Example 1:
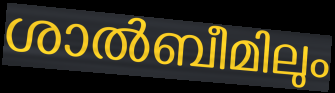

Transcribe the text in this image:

ശാൽബീമിലും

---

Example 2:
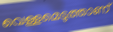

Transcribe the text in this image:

വെള്ളമെടുത്താണ്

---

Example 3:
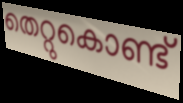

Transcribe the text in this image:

തെറ്റുകൊണ്ട്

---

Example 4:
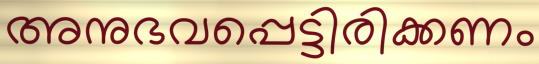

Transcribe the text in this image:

അനുഭവപ്പെട്ടിരിക്കണം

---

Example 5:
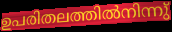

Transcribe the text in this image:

ഉപരിതലത്തിൽനിന്നു്